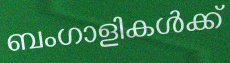
ബംഗാളികൾക്ക്